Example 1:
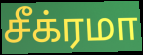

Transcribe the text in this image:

சீக்ரமா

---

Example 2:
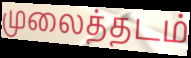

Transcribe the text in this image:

முலைத்தடம்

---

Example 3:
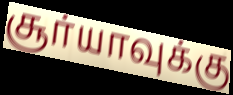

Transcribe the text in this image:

சூர்யாவுக்கு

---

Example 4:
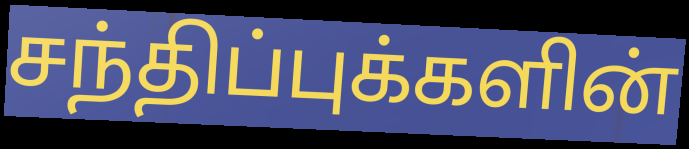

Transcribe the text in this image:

சந்திப்புக்களின்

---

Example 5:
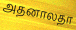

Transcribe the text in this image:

அதனாலதா